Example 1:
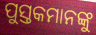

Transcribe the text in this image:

ପୁସ୍ତକମାନଙ୍କୁ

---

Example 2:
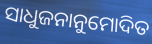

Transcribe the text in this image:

ସାଧୁଜନାନୁମୋଦିତ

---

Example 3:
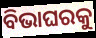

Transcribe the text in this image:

ବିଭାଘରକୁ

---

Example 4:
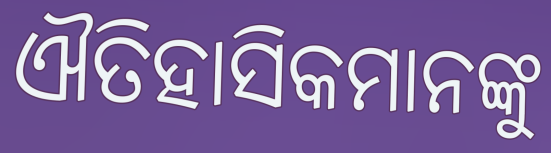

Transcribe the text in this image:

ଐତିହାସିକମାନଙ୍କୁ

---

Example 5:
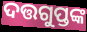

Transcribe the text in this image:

ଦତ୍ତଗୁପ୍ତଙ୍କ